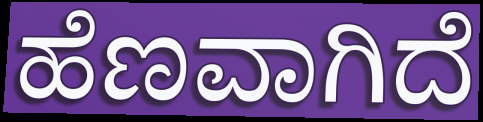
ಹೆಣವಾಗಿದೆ